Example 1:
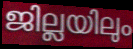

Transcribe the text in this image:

ജില്ലയിലും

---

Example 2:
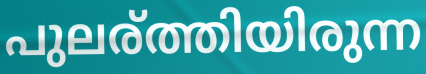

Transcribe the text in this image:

പുലര്ത്തിയിരുന്ന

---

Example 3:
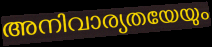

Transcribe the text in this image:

അനിവാര്യതയേയും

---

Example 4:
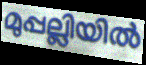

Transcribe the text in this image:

മുപ്പല്ലിയിൽ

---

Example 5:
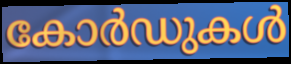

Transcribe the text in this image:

കോർഡുകൾ